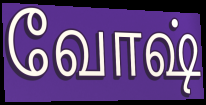
வோஷ்